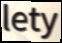
lety